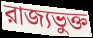
রাজ্যভুক্ত